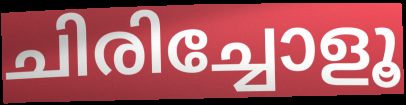
ചിരിച്ചോളൂ